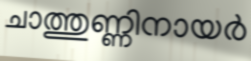
ചാത്തുണ്ണിനായർ